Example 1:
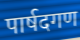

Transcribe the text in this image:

पार्षदगण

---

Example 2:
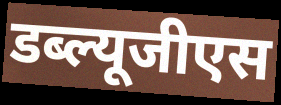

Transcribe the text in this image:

डब्ल्यूजीएस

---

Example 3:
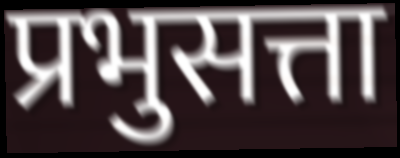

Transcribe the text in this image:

प्रभुसत्ता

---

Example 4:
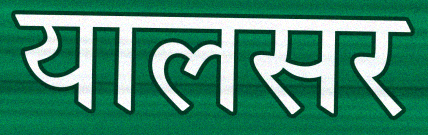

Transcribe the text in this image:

यालसर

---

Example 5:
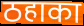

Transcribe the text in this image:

ठहाका